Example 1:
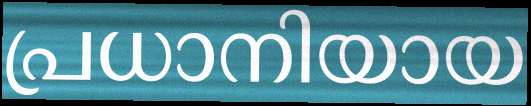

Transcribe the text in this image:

പ്രധാനിയായ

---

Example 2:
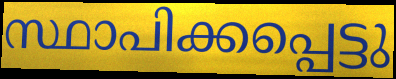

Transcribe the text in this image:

സ്ഥാപിക്കപ്പെട്ടു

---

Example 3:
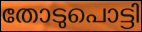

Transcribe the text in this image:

തോടുപൊട്ടി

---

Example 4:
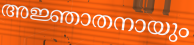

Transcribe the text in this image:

അജ്ഞാതനായും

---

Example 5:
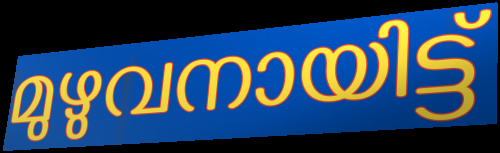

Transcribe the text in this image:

മുഴുവനായിട്ട്